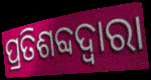
ପ୍ରତିଶବ୍ଦଦ୍ୱାରା